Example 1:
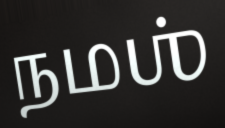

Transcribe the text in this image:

நமஶ்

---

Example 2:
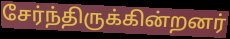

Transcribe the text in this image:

சேர்ந்திருக்கின்றனர்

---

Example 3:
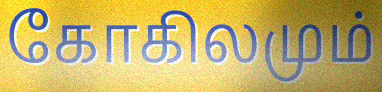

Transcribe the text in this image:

கோகிலமும்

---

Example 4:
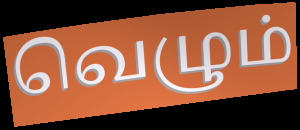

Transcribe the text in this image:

வெழும்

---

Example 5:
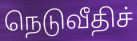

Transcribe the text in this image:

நெடுவீதிச்